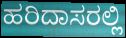
ಹರಿದಾಸರಲ್ಲಿ